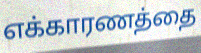
எக்காரணத்தை